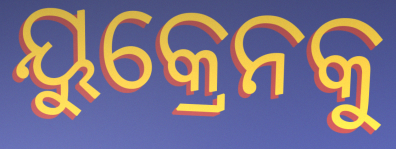
ୟୁକ୍ରେନକୁ